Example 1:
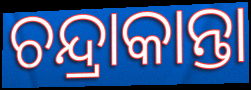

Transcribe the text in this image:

ଚନ୍ଦ୍ରାକାନ୍ତା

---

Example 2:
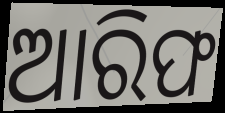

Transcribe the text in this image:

ଆରିଫ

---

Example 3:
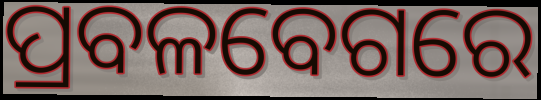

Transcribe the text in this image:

ପ୍ରବଳବେଗରେ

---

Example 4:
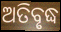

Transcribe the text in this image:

ଅତିବୃଦ୍ଧ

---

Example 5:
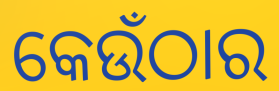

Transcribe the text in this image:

କେଉଁଠାର